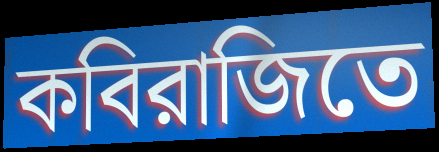
কবিরাজিতে